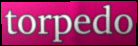
torpedo